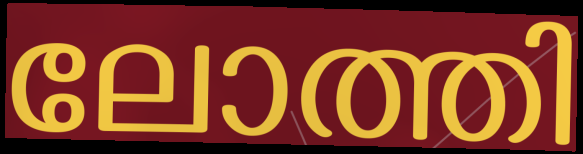
ലോത്തി